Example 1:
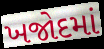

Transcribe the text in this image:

ખજોદમાં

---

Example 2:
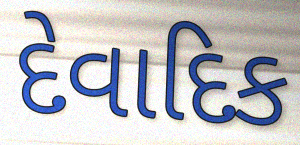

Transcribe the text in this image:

દેવાદિક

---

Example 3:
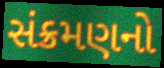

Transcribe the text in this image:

સંક્રમણનો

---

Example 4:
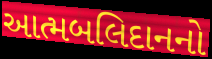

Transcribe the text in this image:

આત્મબલિદાનનો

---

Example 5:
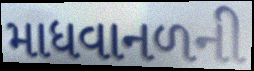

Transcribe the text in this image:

માધવાનળની